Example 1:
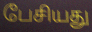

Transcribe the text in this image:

பேசியது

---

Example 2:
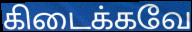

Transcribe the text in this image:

கிடைக்கவே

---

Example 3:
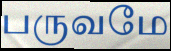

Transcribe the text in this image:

பருவமே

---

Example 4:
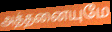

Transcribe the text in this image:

அத்தனையுமே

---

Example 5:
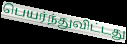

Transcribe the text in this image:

பெயர்ந்துவிட்டது